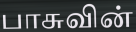
பாசுவின்